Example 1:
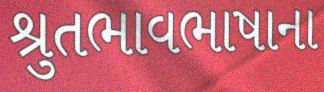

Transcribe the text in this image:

શ્રુતભાવભાષાના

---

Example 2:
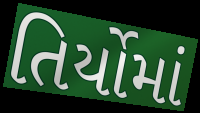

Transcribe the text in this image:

તિર્યોમાં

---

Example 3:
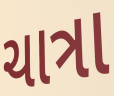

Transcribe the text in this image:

ચાત્રા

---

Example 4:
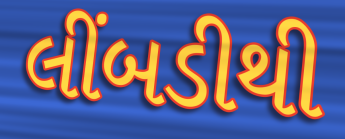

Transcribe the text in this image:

લીંબડીથી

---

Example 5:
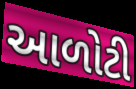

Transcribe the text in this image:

આળોટી